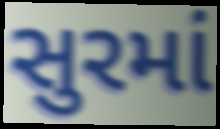
સુરમાં